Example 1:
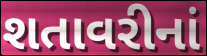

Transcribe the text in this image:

શતાવરીનાં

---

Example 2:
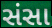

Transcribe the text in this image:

સંસા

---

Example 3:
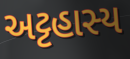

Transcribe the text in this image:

અટ્ટહાસ્ય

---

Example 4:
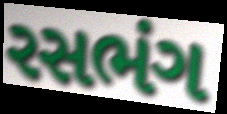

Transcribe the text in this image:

રસભંગ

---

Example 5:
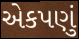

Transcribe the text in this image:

એકપણું